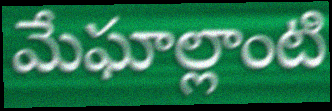
మేఘాల్లాంటి